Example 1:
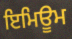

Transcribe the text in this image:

ਇਮਿਊਮ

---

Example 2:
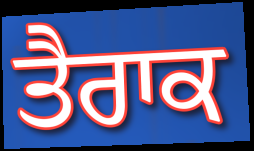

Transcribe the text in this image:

ਤੈਰਾਕ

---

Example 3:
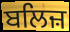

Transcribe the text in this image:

ਬਲਿਜ਼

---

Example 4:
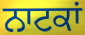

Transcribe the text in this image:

ਨਾਟਕਾਂ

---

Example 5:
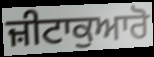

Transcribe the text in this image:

ਜ਼ੀਟਾਕੁਆਰੋ